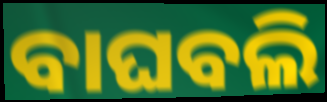
ବାଘବଲି